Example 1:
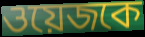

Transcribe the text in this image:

ওয়েজকে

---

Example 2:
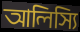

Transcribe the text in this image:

আলিস্যি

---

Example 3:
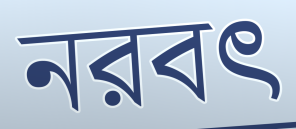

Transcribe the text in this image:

নরবৎ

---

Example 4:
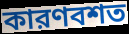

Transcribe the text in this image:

কারণবশত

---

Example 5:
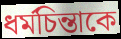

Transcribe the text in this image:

ধর্মচিন্তাকে